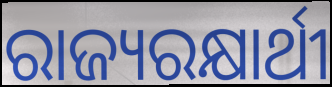
ରାଜ୍ୟରକ୍ଷାର୍ଥୀ